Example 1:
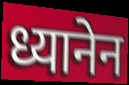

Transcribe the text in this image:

ध्यानेन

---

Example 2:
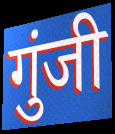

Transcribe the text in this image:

गुंजी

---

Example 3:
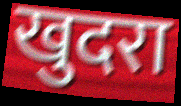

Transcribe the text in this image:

खुदरा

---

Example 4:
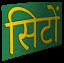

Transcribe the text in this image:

सिटों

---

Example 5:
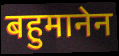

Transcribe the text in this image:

बहुमानेन